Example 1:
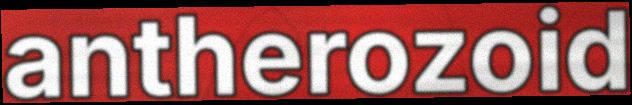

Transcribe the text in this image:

antherozoid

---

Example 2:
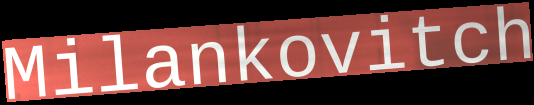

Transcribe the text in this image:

Milankovitch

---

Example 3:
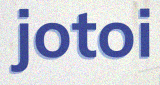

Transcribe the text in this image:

jotoi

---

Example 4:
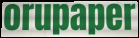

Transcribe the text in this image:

orupaper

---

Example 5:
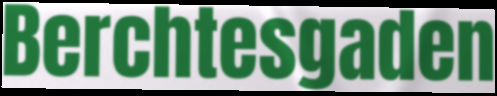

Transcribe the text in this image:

Berchtesgaden